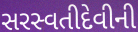
સરસ્વતીદેવીની